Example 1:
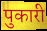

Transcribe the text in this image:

पुकारी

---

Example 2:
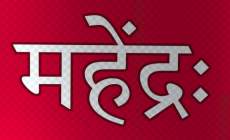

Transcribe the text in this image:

महेंद्रः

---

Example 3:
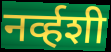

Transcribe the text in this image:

नर्व्हशी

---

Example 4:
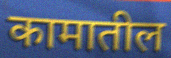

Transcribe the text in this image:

कामातील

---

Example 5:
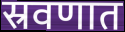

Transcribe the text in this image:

स्रवणात